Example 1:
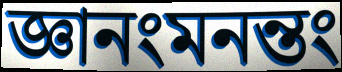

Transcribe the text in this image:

জ্ঞানংমনন্তং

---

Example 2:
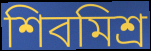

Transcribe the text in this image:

শিবমিশ্র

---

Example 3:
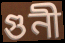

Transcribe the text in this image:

গুনী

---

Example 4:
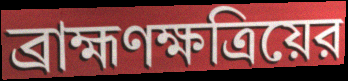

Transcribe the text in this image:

ব্রাহ্মণক্ষত্রিয়ের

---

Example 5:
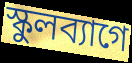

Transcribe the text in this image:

স্কুলব্যাগে